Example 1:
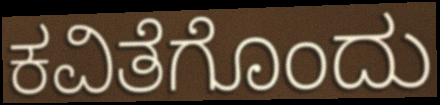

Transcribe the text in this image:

ಕವಿತೆಗೊಂದು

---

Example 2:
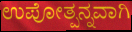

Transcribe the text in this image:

ಉಪೋತ್ಪನ್ನವಾಗಿ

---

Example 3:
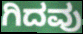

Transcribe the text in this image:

ಗಿದವು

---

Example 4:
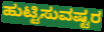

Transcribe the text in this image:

ಹುಟ್ಟಿಸುವಷ್ಟರ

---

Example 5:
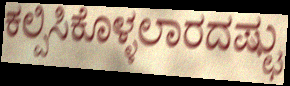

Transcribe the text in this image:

ಕಲ್ಪಿಸಿಕೊಳ್ಳಲಾರದಷ್ಟು